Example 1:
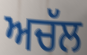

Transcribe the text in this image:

ਅਚੱਲ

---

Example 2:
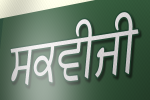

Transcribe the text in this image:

ਸਕਵੀਜੀ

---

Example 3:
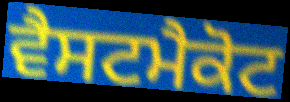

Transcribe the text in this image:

ਵੈਸਟਮੈਕੋਟ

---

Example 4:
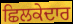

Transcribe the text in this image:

ਛਿਲਕੇਦਾਰ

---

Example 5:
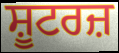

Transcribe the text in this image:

ਸ਼ੂਟਰਜ਼